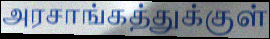
அரசாங்கத்துக்குள்